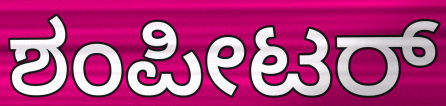
ಶಂಪೀಟರ್